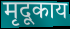
मृदूकाय